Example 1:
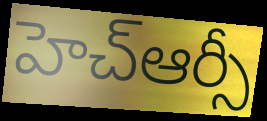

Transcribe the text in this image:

హెచ్ఆర్సీ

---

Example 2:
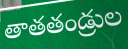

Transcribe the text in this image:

తాతతండ్రుల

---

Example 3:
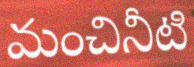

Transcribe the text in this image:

మంచినీటి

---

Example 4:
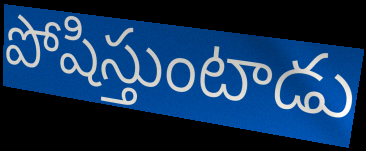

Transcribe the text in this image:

పోషిస్తుంటాడు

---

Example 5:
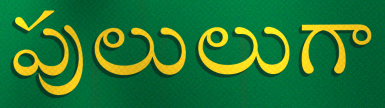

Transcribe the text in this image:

పులులుగా